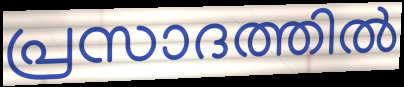
പ്രസാദത്തിൽ